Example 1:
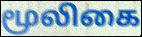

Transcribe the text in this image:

மூலிகை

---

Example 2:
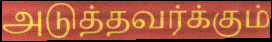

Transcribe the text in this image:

அடுத்தவர்க்கும்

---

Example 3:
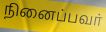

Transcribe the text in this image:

நினைப்பவர்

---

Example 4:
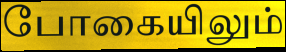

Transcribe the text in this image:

போகையிலும்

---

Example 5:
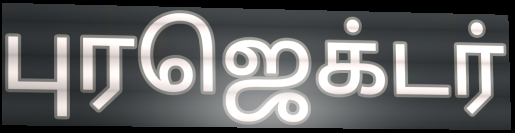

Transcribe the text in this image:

புரஜெக்டர்